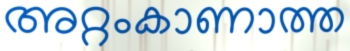
അറ്റംകാണാത്ത